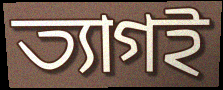
ত্যাগই